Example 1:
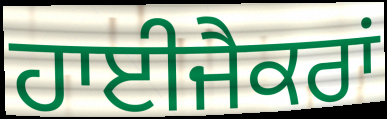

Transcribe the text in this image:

ਹਾਈਜੈਕਰਾਂ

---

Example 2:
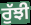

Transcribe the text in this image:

ਰੁੱਝੀ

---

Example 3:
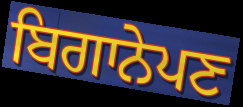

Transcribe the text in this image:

ਬਿਗਾਨੇਪਣ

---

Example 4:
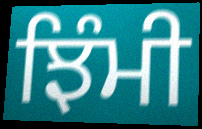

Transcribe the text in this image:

ਝਿੰਮੀ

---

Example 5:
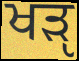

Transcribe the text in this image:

ਖੜੵ